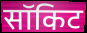
सॉकिट